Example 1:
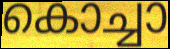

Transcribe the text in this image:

കൊച്ചാ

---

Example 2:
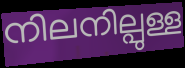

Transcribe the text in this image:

നിലനില്പുള്ള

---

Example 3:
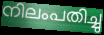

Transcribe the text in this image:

നിലംപതിച്ചു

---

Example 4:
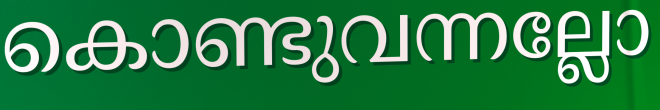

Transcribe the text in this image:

കൊണ്ടുവന്നല്ലോ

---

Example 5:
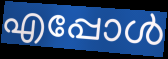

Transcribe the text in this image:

എപ്പോൾ